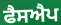
ਫੈਸਐਪ